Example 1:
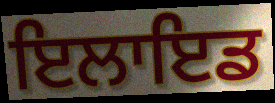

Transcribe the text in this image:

ਇਲਾਇਡ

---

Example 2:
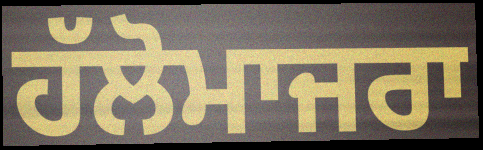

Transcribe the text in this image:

ਹੱਲੋਮਾਜਰਾ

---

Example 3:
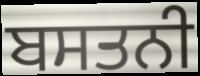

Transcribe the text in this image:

ਬਸਤਨੀ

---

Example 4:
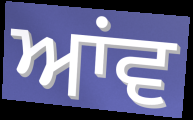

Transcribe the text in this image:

ਆਂਵ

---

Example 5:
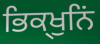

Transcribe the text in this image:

ਭਿਕ੍ਖੁਨਿਂ